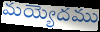
మయ్యెదము